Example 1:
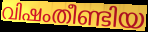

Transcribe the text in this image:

വിഷംതീണ്ടിയ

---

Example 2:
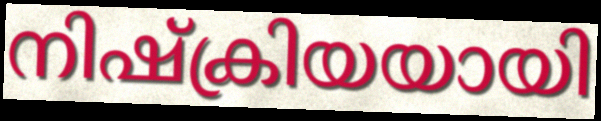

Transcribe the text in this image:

നിഷ്ക്രിയയായി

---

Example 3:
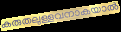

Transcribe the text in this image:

കരുതലുള്ളവനാകയാൽ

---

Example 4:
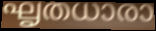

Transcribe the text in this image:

ഘൃതധാരാ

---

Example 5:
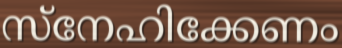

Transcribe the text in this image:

സ്നേഹിക്കേണം